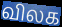
விலக